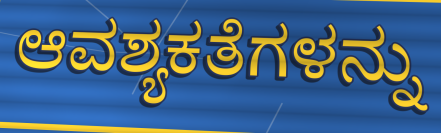
ಆವಶ್ಯಕತೆಗಳನ್ನು